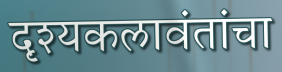
दृश्यकलावंतांचा